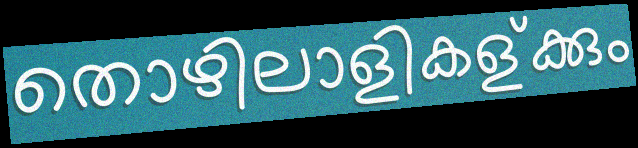
തൊഴിലാളികള്ക്കും